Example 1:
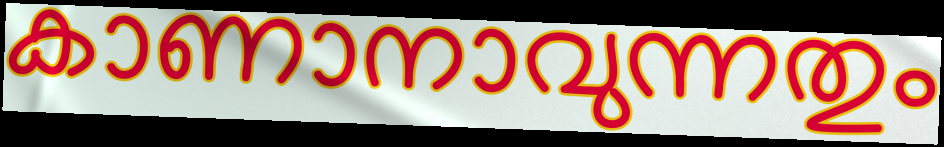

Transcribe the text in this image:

കാണാനാവുന്നതും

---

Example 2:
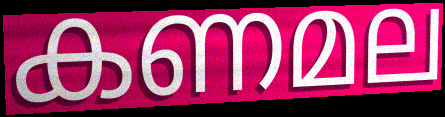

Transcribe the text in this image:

കണമല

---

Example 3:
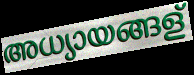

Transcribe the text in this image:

അധ്യായങ്ങള്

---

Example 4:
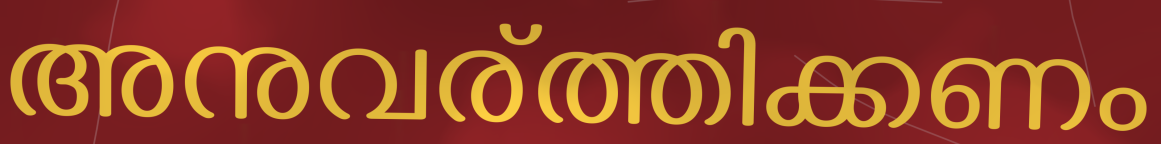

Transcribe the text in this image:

അനുവര്ത്തിക്കണം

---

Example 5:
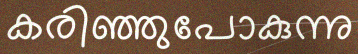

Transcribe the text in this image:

കരിഞ്ഞുപോകുന്നു